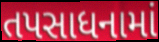
તપસાધનામાં